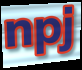
npj